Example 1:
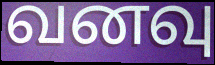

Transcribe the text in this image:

வனவு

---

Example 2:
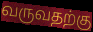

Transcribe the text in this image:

வருவதற்கு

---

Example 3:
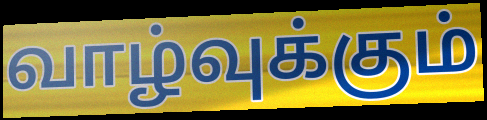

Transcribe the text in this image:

வாழ்வுக்கும்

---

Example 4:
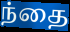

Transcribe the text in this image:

ந்தை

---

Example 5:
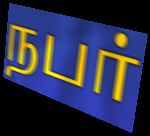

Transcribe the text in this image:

நபர்